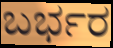
ಬರ್ಭರ